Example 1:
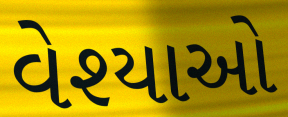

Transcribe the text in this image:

વેશ્યાઓ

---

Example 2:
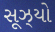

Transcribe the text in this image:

સૂઝ્યો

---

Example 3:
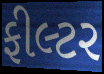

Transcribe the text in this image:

ફીલ્ટર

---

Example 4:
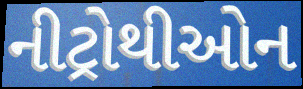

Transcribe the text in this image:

નીટ્રોથીઓન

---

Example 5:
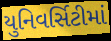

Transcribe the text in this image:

યુનિવર્સિટીમાં